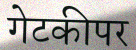
गेटकीपर